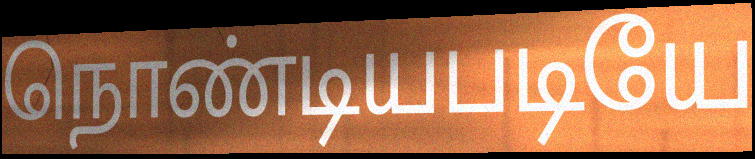
நொண்டியபடியே